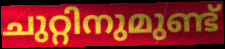
ചുറ്റിനുമുണ്ട്